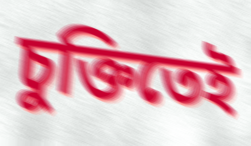
চুক্তিতেই